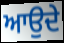
ਆਉਦੇ